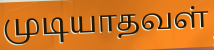
முடியாதவள்